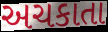
અચકાતા